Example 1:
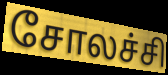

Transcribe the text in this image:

சோலச்சி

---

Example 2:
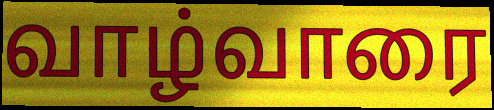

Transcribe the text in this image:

வாழ்வாரை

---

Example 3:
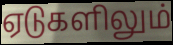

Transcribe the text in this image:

ஏடுகளிலும்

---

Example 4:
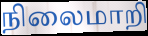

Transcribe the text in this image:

நிலைமாறி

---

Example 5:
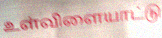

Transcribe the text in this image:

உள்விளையாட்டு